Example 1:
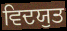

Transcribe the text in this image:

ਵਿਦਯੁਤ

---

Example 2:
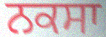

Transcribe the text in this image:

ਨਕਸਾ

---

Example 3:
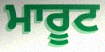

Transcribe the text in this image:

ਮਾਰੂਟ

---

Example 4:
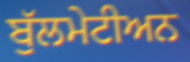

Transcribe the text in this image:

ਬੁੱਲਮੇਟੀਅਨ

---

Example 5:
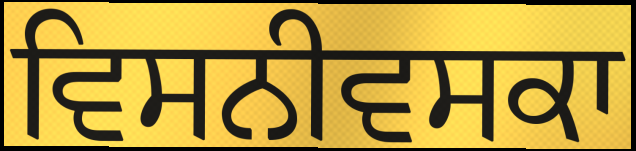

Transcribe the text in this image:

ਵਿਸਨੀਵਸਕਾ